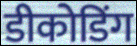
डीकोडिंग